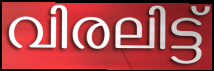
വിരലിട്ട്